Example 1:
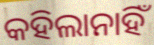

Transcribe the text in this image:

କହିଲାନାହିଁ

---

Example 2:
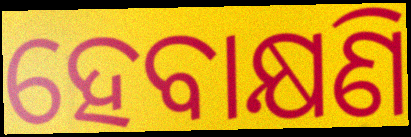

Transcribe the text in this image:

ହେବାକ୍ଷଣି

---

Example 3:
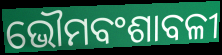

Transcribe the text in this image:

ଭୌମବଂଶାବଳୀ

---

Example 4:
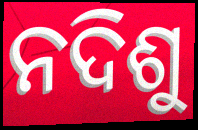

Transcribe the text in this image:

ନଦିଶୁ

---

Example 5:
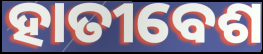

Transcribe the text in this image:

ହାତୀବେଶ